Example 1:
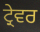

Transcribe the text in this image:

ਟ੍ਰੇਵਰ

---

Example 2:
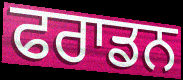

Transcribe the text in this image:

ਫਰਾਡਨ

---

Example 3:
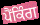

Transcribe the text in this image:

ਪੈਂਕਿੰਗ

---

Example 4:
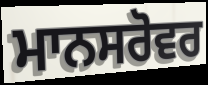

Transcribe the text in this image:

ਮਾਨਸਰੋਵਰ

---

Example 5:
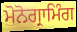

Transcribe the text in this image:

ਮੋਨੋਗ੍ਰਾਮਿੰਗ